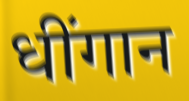
धींगान